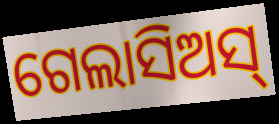
ଗେଲାସିଅସ୍